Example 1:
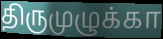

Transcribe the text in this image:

திருமுழுக்கா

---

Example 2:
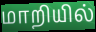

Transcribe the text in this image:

மாறியில்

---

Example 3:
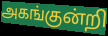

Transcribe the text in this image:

அகங்குன்றி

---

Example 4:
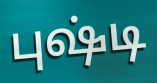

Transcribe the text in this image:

புஷ்டி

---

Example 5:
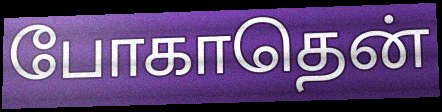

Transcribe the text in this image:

போகாதென்